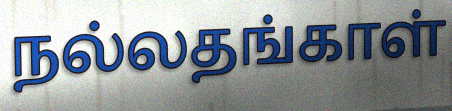
நல்லதங்காள்